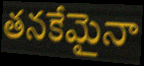
తనకేమైనా